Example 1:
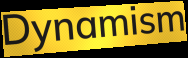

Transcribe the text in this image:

Dynamism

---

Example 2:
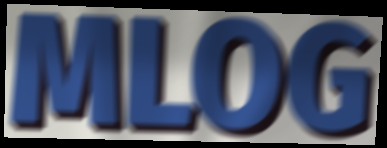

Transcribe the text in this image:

MLOG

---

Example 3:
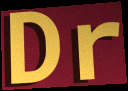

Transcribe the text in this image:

Dr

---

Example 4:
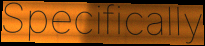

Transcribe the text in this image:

Specifically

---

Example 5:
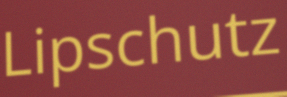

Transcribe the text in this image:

Lipschutz